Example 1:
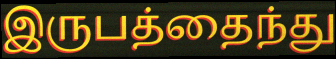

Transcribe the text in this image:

இருபத்தைந்து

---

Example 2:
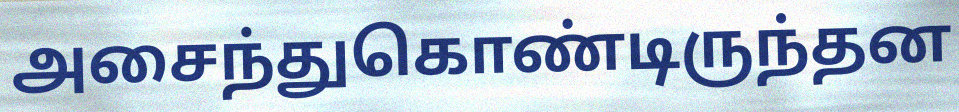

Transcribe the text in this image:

அசைந்துகொண்டிருந்தன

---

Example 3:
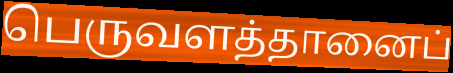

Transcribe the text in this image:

பெருவளத்தானைப்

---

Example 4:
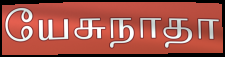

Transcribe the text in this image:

யேசுநாதா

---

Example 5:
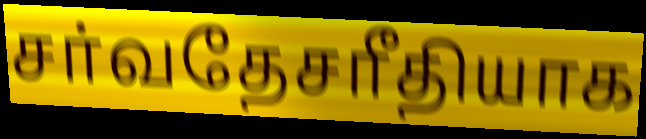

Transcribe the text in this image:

சர்வதேசரீதியாக